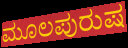
ಮೂಲಪುರುಷ